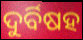
ଦୁର୍ବିଷହ